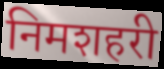
निमशहरी